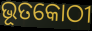
ଭୂତକୋଠୀ